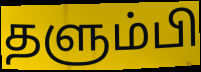
தளும்பி